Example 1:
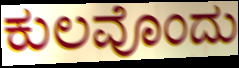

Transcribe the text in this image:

ಕುಲವೊಂದು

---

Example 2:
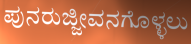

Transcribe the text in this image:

ಪುನರುಜ್ಜೀವನಗೊಳ್ಳಲು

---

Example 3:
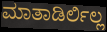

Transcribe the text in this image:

ಮಾತಾಡಿರ್ಲಿಲ್ಲ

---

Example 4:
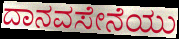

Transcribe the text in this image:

ದಾನವಸೇನೆಯು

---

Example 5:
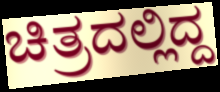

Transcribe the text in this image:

ಚಿತ್ರದಲ್ಲಿದ್ದ